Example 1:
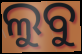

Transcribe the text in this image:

ଲୁବୁ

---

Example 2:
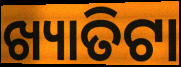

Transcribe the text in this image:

ଖ୍ୟାତିଟା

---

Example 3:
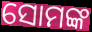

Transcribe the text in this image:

ସୋମଙ୍କ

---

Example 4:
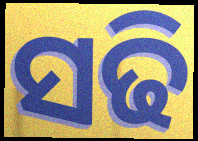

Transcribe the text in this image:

ସଢି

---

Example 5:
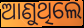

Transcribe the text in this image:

ଆଣୁଥିଲେ